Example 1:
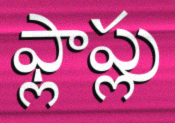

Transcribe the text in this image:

ఫ్లాప్లు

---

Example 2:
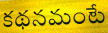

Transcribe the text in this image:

కథనమంటే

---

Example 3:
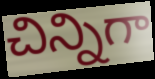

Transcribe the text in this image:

చిన్నిగా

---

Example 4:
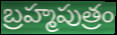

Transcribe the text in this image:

బ్రహ్మపుత్రం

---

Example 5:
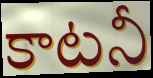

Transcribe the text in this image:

కాటనీ